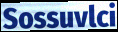
Sossuvlci